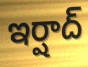
ఇర్షాద్